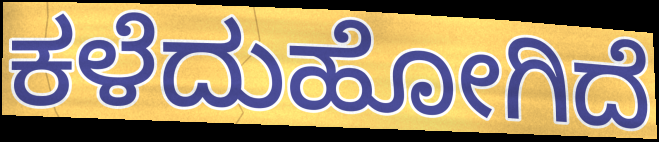
ಕಳೆದುಹೋಗಿದೆ